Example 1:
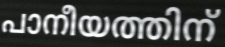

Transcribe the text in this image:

പാനീയത്തിന്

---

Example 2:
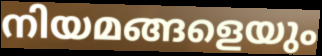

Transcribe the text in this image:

നിയമങ്ങളെയും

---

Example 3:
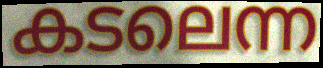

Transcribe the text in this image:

കടലെന്ന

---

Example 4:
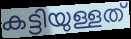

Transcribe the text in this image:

കട്ടിയുള്ളത്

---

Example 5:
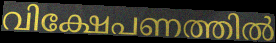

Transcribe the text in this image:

വിക്ഷേപണത്തിൽ